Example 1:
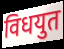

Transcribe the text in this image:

विधयुत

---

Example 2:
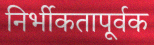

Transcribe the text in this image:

निर्भीकतापूर्वक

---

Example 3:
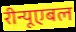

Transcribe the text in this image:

रीन्यूएबल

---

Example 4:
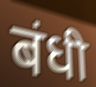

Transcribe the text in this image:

बंधी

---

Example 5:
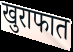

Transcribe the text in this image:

खुराफात